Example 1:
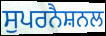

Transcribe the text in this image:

ਸੁਪਰਨੈਸ਼ਨਲ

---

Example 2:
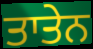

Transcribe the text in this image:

ਤਾਤੇਨ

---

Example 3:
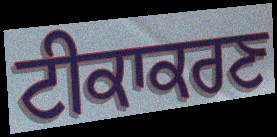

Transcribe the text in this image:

ਟੀਕਾਕਰਣ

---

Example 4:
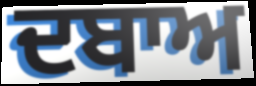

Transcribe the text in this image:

ਦਬਾਅ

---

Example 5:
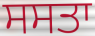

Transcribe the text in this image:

ਸਸਤਾ